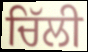
ਚਿੱਲੀ